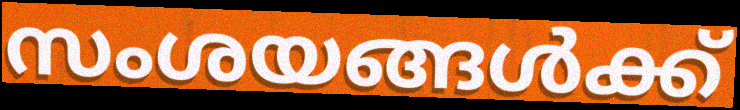
സംശയങ്ങൾക്ക്